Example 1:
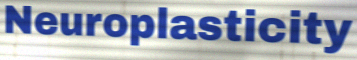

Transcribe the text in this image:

Neuroplasticity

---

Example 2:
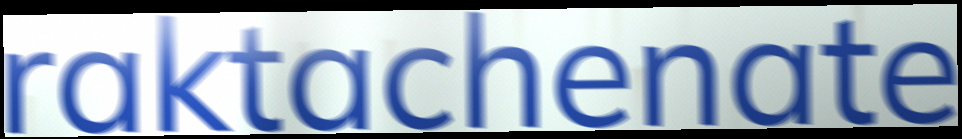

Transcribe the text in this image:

raktachenate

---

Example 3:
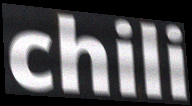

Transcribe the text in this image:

chili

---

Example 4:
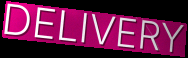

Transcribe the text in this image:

DELIVERY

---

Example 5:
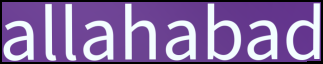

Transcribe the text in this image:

allahabad